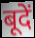
बूदें